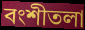
বংশীতলা